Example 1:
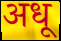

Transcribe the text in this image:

अधू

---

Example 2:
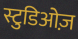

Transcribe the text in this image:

स्टुडिओज़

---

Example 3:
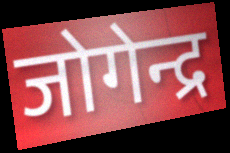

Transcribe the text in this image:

जोगेन्द्र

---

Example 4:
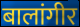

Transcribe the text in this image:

बालांगीर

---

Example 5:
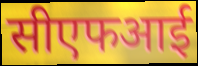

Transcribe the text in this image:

सीएफआई